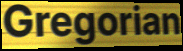
Gregorian